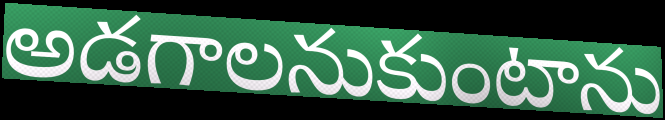
అడగాలనుకుంటాను